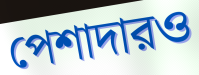
পেশাদারও